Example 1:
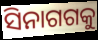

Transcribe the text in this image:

ସିନାଗଗକୁ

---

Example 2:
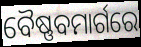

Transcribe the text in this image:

ବୈଷ୍ଣବମାର୍ଗରେ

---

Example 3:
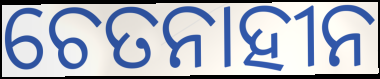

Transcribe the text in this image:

ଚେତନାହୀନ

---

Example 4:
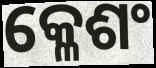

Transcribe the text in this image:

କ୍ଳେଶଂ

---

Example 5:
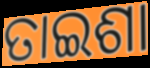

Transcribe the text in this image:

ତାଇଶା